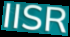
IISR